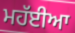
ਮਹੱਈਆ